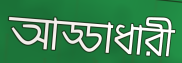
আড্ডাধারী